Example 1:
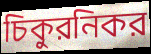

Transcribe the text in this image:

চিকুরনিকর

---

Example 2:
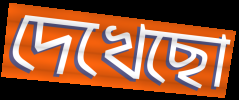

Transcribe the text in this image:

দেখেছো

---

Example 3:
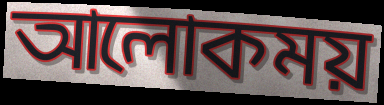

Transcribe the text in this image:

আলোকময়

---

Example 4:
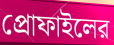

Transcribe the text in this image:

প্রোফাইলের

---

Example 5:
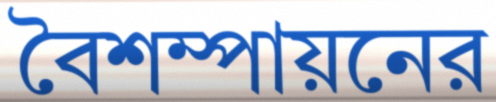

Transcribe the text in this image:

বৈশম্পায়নের